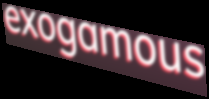
exogamous